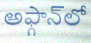
అఫ్గాన్‌లో